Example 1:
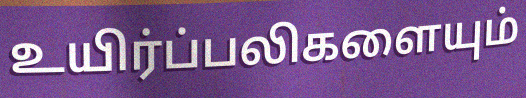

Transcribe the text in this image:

உயிர்ப்பலிகளையும்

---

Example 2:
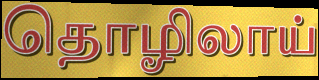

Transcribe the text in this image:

தொழிலாய்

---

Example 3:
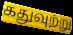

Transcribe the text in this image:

கதுவுற்று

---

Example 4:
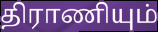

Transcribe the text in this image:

திராணியும்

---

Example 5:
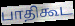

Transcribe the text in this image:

பாதிகூட